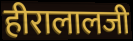
हीरालालजी